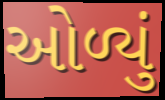
ઓળ્યું